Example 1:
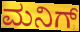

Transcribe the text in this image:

ಮನಿಗ್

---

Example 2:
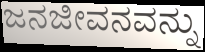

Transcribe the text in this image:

ಜನಜೀವನವನ್ನು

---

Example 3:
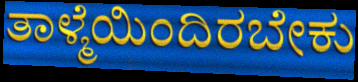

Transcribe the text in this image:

ತಾಳ್ಮೆಯಿಂದಿರಬೇಕು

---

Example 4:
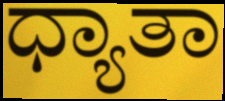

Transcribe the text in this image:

ಧ್ಯಾತಾ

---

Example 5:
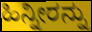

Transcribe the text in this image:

ಹಿನ್ನೀರನ್ನು